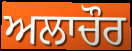
ਅਲਾਚੌਰ